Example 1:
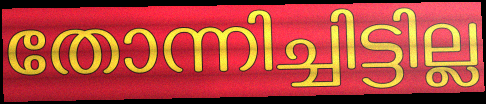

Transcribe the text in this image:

തോന്നിച്ചിട്ടില്ല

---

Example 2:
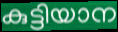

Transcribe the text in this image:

കുട്ടിയാന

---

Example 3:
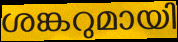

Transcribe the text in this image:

ശങ്കറുമായി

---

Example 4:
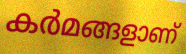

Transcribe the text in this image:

കർമങ്ങളാണ്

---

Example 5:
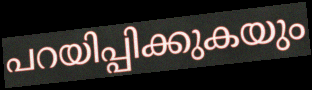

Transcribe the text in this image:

പറയിപ്പിക്കുകയും